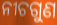
ନୀଚଗୁଣ